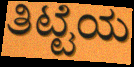
ತಿಟ್ಟೆಯ